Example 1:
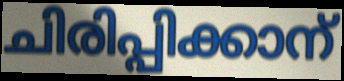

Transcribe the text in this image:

ചിരിപ്പിക്കാന്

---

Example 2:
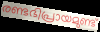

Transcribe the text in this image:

രണ്ടഭിപ്രായമുണ്ട്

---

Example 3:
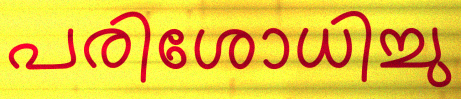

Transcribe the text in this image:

പരിശോധിച്ചു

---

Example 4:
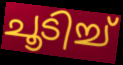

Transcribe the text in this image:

ചൂടിച്ച്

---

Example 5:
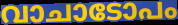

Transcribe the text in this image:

വാചാടോപം